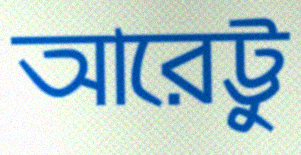
আরেট্টু